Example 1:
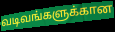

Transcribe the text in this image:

வடிவங்களுக்கான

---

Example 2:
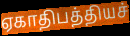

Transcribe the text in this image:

ஏகாதிபத்தியச்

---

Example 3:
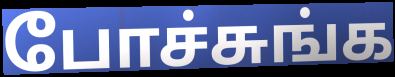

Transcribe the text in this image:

போச்சுங்க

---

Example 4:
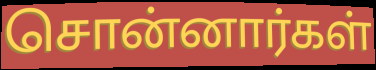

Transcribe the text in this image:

சொன்னார்கள்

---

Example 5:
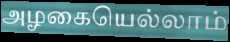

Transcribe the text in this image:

அழகையெல்லாம்